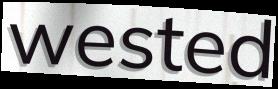
wested